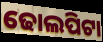
ଢୋଲପିଟା